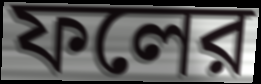
ফলের